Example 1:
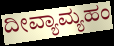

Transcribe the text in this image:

ದೀವ್ಯಾಮ್ಯಹಂ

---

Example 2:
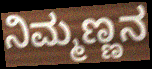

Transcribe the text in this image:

ನಿಮ್ಮಣ್ಣನ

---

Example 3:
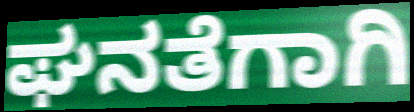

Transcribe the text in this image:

ಘನತೆಗಾಗಿ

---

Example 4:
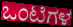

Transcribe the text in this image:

ಒಂಟೆಗಳ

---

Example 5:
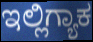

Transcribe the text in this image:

ಇಲ್ಲಿಗ್ಯಾಕ